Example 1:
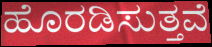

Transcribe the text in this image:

ಹೊರಡಿಸುತ್ತವೆ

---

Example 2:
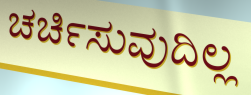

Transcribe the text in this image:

ಚರ್ಚಿಸುವುದಿಲ್ಲ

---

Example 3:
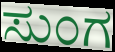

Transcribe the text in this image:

ಸುಂಗ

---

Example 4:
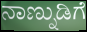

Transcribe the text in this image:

ನಾಣ್ನುಡಿಗೆ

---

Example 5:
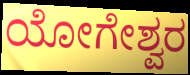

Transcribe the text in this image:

ಯೋಗೇಶ್ವರ